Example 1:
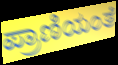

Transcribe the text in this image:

ಪ್ರಾಣಿಯಂತೆ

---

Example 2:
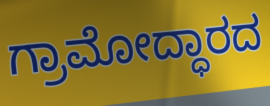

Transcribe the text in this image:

ಗ್ರಾಮೋದ್ಧಾರದ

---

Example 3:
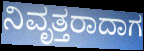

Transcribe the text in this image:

ನಿವೃತ್ತರಾದಾಗ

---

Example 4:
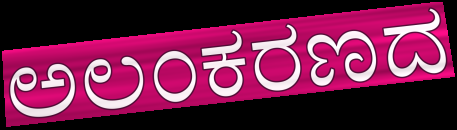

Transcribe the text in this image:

ಅಲಂಕರಣದ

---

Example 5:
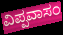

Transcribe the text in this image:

ವಿಪ್ಪವಾಸಂ